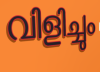
വിളിച്ചും